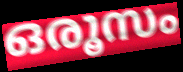
ഒരൂസം